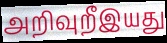
அறிவுறீஇயது